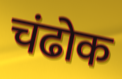
चंढोक